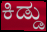
ಕಿಡ್ಡು